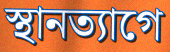
স্থানত্যাগে